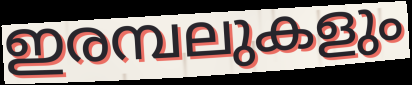
ഇരമ്പലുകളും